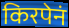
किरपेनं